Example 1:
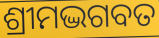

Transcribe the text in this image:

ଶ୍ରୀମଦ୍ଭଗବତ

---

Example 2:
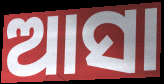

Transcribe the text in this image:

ଆସା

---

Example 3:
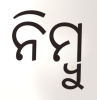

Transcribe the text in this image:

ନିମ୍ବୁ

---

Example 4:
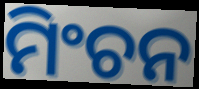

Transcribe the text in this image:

ମିଂଚନ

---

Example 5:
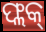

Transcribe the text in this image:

ଫ୍ଲକ୍